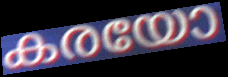
കരയോ